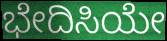
ಭೇದಿಸಿಯೇ